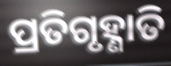
ପ୍ରତିଗୃହ୍ଣାତି